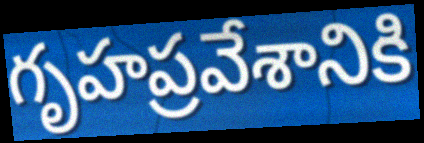
గృహప్రవేశానికి